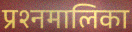
प्रश्नमालिका